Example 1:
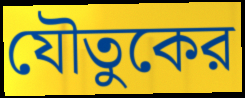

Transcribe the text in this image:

যৌতুকের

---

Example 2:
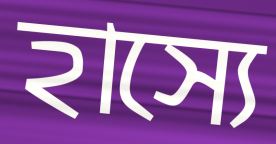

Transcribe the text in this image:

হাস্যে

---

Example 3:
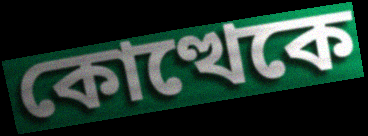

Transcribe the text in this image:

কোত্থেকে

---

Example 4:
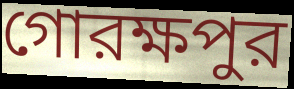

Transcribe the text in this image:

গোরক্ষপুর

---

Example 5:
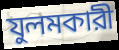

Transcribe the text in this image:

যুলমকারী